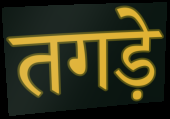
तगड़े